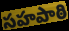
సహపాఠి